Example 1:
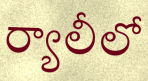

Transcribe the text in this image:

ర్యాలీలో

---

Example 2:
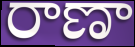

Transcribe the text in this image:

రాణా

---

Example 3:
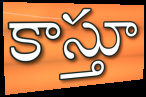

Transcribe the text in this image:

కాస్తూ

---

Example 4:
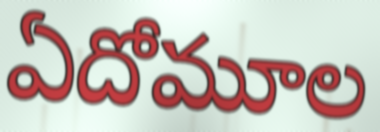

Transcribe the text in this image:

ఏదోమూల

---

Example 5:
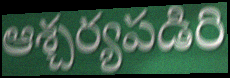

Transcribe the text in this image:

ఆశ్చర్యపడిరి